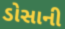
ડોસાની